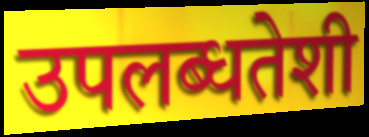
उपलब्धतेशी